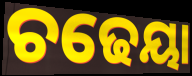
ଚଢେୟା